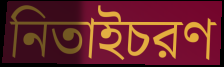
নিতাইচরণ